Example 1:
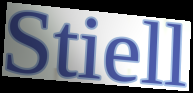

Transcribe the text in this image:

Stiell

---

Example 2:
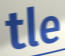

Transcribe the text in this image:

tle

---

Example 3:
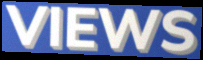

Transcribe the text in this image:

VIEWS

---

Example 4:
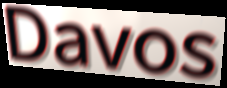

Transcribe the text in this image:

Davos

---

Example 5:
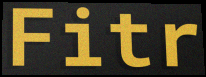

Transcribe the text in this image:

Fitr